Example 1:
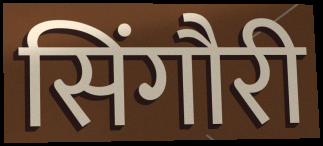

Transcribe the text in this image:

सिंगौरी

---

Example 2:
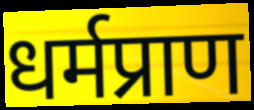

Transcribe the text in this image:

धर्मप्राण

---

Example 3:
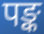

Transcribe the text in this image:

पङ्क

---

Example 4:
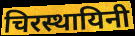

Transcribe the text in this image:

चिरस्थायिनी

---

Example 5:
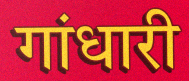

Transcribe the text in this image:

गांधारी